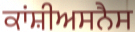
ਕਾਂਸ਼ੀਅਸਨੈਸ